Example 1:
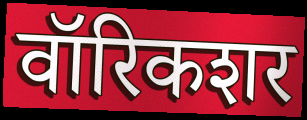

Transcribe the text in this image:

वॉरिकशर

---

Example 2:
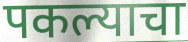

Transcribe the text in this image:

पकल्याचा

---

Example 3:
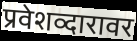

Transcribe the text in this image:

प्रवेशव्दारावर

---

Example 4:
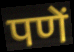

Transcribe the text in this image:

पणें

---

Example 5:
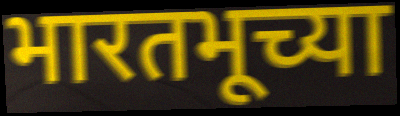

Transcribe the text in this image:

भारतभूच्या